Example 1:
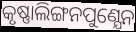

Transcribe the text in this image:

କୃଷ୍ଣାଲିଙ୍ଗନପୁଣ୍ଯେନ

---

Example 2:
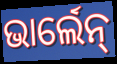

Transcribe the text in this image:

ଭାର୍ଲେନ୍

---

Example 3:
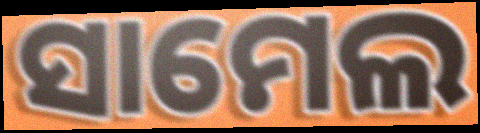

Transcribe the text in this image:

ସାମେଲ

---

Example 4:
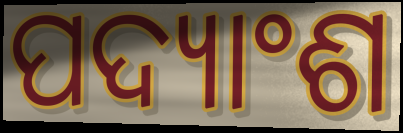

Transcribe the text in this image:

ପଦ୍ୟାଂଶ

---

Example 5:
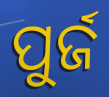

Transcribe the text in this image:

ପୁର୍ଜ